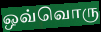
ஒவ்வொரு